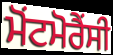
ਮੋਂਟਮੋਰੈਂਸੀ